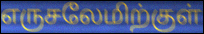
எருசலேமிற்குள்